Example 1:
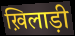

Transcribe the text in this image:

ख़िलाड़ी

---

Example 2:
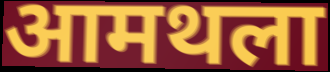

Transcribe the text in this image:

आमथला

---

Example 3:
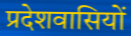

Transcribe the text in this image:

प्रदेशवासियों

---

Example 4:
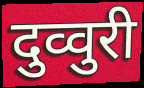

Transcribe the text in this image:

दुव्वुरी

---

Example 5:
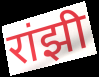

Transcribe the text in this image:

रांझी